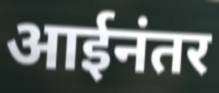
आईनंतर